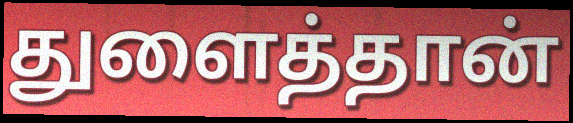
துளைத்தான்